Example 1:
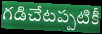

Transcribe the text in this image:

గడిచేటప్పటికీ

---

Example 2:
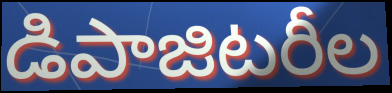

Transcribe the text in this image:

డిపాజిటరీల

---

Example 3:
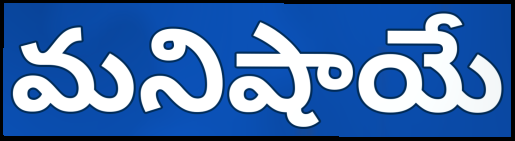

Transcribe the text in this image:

మనిషాయే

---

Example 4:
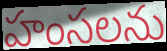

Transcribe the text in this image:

హంసలను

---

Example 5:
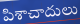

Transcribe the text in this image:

పిశాచాదులు